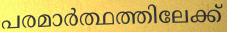
പരമാർത്ഥത്തിലേക്ക്